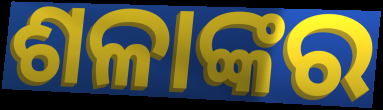
ଶଳାଙ୍କର